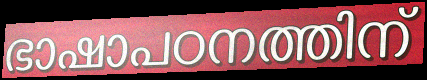
ഭാഷാപഠനത്തിന്